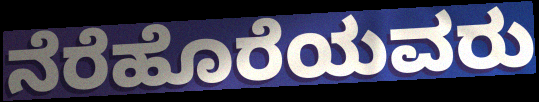
ನೆರೆಹೊರೆಯವರು